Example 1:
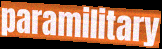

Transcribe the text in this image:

paramilitary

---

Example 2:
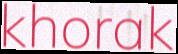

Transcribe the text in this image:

khorak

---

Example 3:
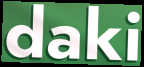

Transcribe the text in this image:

daki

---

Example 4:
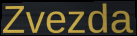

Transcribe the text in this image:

Zvezda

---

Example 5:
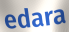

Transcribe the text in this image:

edara